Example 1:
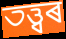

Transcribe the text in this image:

তত্ত্বৰ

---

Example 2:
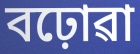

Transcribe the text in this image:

বঢ়োৱা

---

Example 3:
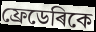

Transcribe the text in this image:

ফ্ৰেডেৰিকে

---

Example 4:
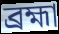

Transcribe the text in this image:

ব্ৰহ্মা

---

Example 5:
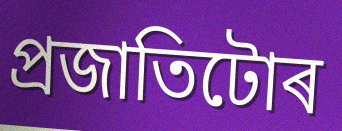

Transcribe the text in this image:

প্ৰজাতিটোৰ